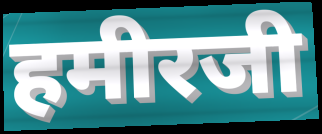
हमीरजी